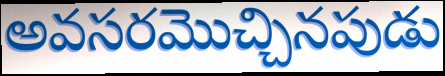
అవసరమొచ్చినపుడు